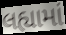
લહ્યામાં